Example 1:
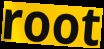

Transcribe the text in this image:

root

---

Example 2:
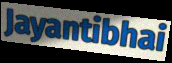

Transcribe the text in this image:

Jayantibhai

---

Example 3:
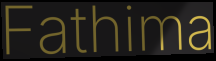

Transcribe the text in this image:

Fathima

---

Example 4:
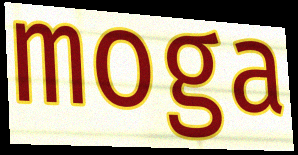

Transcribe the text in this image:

moga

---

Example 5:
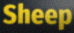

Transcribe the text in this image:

Sheep